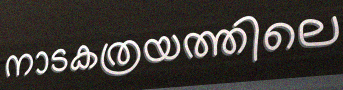
നാടകത്രയത്തിലെ